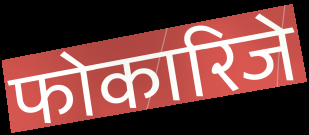
फोकारिजे